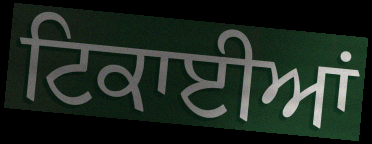
ਟਿਕਾਈਆਂ